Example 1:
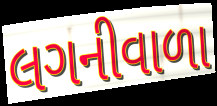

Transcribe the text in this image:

લગનીવાળા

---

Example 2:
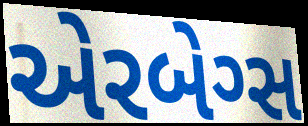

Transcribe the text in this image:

એરબેગ્સ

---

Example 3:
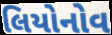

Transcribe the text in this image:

લિયોનોવ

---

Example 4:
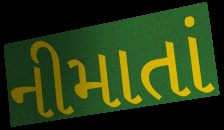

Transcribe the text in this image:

નીમાતાં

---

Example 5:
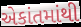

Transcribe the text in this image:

એકાંતમાંથી